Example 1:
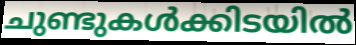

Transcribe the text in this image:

ചുണ്ടുകൾക്കിടയിൽ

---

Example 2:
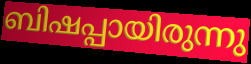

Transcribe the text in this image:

ബിഷപ്പായിരുന്നു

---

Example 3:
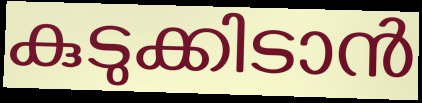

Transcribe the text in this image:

കുടുക്കിടാൻ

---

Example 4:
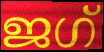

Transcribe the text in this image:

ജഗ്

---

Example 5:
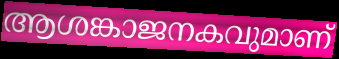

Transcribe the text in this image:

ആശങ്കാജനകവുമാണ്